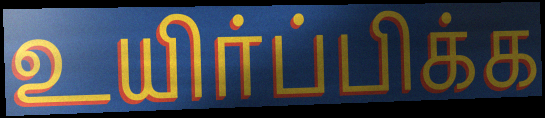
உயிர்ப்பிக்க